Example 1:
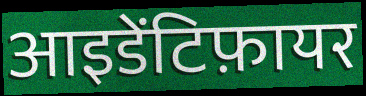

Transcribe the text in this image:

आइडेंटिफ़ायर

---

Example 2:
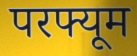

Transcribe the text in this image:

परफ्यूम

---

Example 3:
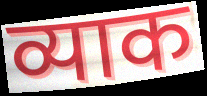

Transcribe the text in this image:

व्याक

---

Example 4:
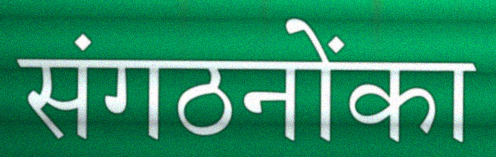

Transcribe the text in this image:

संगठनोंका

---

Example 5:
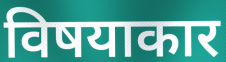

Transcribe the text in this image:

विषयाकार